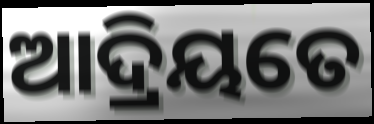
ଆଦ୍ରିୟତେ